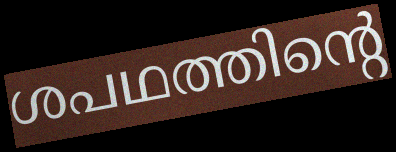
ശപഥത്തിന്റെ